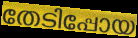
തേടിപ്പോയ